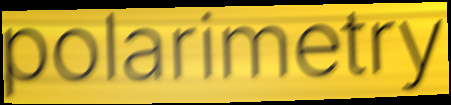
polarimetry